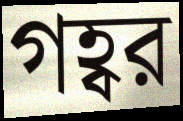
গহ্বর